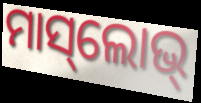
ମାସ୍‌ଲୋଭ୍